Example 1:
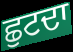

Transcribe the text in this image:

ਛੁਟਦਾ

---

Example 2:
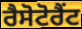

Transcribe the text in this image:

ਰੈਸੋਟੋਰੈਂਟ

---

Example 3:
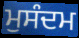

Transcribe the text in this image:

ਮੁਸੰਦਮ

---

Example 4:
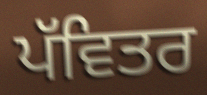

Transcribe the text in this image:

ਪੱਵਿਤਰ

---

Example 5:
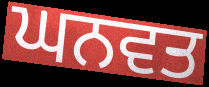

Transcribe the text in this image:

ਘਨਵਤ